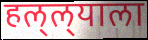
हल्ल्याला